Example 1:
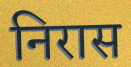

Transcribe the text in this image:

निरास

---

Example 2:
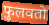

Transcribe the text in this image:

फुलवतो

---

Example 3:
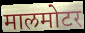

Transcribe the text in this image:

मालमोटर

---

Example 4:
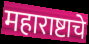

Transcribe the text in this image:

महाराष्टाचे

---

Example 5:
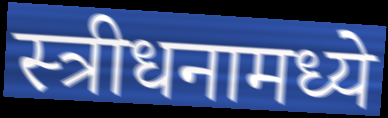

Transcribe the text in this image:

स्त्रीधनामध्ये